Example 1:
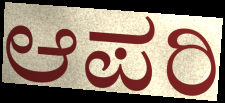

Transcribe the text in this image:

ಆಪರಿ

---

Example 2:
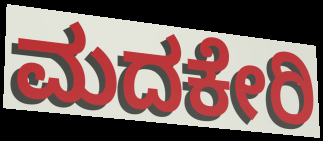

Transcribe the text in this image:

ಮದಕೇರಿ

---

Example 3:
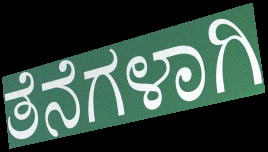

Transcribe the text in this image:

ತೆನೆಗಳಾಗಿ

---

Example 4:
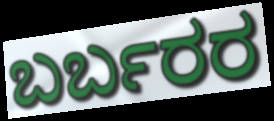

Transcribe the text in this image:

ಬರ್ಬರರ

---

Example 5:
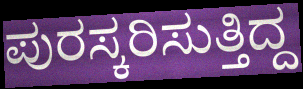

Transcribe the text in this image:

ಪುರಸ್ಕರಿಸುತ್ತಿದ್ದ